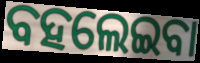
ବହଲେଇବା